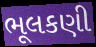
ભૂલકણી